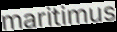
maritimus